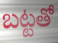
బట్టతో